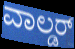
ವಾಲ್ಡರ್